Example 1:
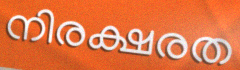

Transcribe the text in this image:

നിരക്ഷരത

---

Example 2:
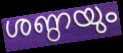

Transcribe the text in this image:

ശണ്ഠയും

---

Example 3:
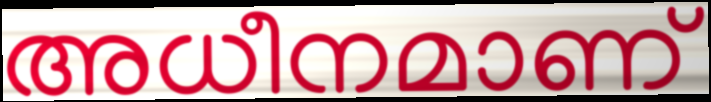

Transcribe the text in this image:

അധീനമാണ്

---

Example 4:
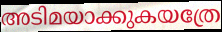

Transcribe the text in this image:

അടിമയാക്കുകയത്രേ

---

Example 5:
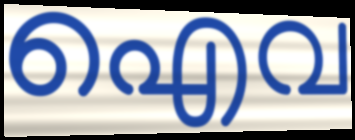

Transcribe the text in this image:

ഐവ